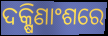
ଦକ୍ଷିଣାଂଶରେ